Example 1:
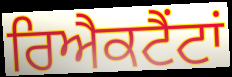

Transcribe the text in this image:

ਰਿਐਕਟੈਂਟਾਂ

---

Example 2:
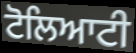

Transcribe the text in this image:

ਟੋਲਿਆਟੀ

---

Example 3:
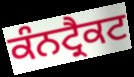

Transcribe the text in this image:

ਕੰਨਟ੍ਰੈਕਟ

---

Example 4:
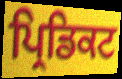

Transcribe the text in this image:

ਪ੍ਰਿਡਿਕਟ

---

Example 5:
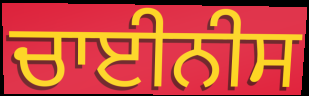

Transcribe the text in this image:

ਚਾਈਨੀਸ